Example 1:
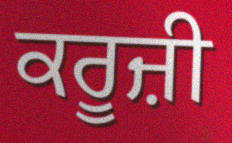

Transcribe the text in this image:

ਕਰੂਜ਼ੀ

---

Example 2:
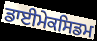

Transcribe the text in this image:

ਡਾਈਮੇਕਸਿਡਮ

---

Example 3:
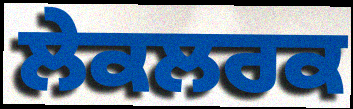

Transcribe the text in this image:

ਲੇਕਲਰਕ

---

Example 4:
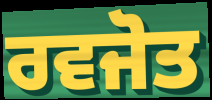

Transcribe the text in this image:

ਰਵਜੋਤ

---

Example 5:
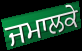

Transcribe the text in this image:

ਜਮਾਲਕੇ